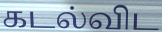
கடல்விட